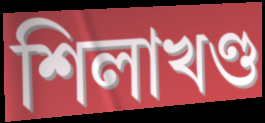
শিলাখণ্ড